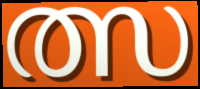
ത്സ